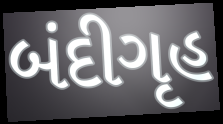
બંદીગૃહ